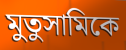
মুতুসামিকে